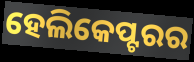
ହେଲିକେପ୍ଟରର